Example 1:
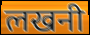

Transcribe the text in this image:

लखनी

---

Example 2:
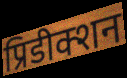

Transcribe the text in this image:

प्रिडीक्शन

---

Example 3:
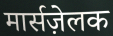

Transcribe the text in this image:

मार्सज़ेलक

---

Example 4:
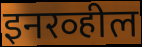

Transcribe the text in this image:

इनरव्हील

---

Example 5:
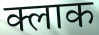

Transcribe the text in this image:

क्लाक